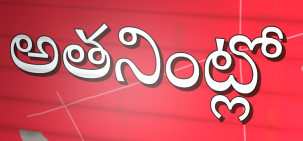
అతనింట్లో